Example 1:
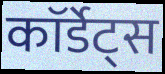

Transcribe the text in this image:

कॉर्डेट्स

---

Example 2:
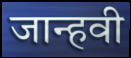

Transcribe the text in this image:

जान्‍हवी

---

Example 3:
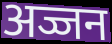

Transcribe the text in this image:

अज्जन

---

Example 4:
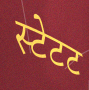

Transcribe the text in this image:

स्टेटट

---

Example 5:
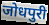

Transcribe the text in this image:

जोधपुरी